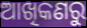
ଆଖିକଣରୁ